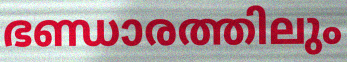
ഭണ്ഡാരത്തിലും